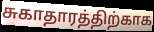
சுகாதாரத்திற்காக